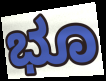
ಭೂ